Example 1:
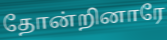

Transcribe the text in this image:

தோன்றினாரே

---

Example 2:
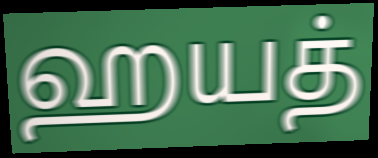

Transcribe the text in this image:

ஹயத்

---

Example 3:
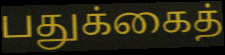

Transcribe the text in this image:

பதுக்கைத்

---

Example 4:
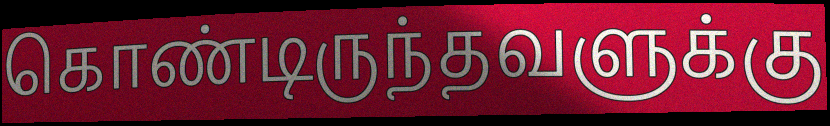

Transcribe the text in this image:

கொண்டிருந்தவளுக்கு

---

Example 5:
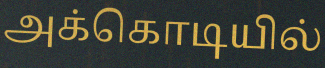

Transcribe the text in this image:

அக்கொடியில்